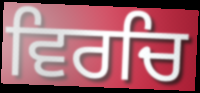
ਵਿਰਚਿ